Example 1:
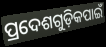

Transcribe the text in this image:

ପ୍ରଦେଶଗୁଡ଼ିକପାଇଁ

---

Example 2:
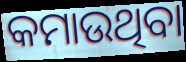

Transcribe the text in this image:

କମାଉଥିବା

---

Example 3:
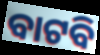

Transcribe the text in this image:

ବାଟବି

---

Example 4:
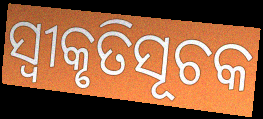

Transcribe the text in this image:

ସ୍ଵୀକୃତିସୂଚକ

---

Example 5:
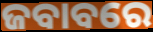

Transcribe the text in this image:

ଜବାବରେ